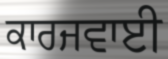
ਕਾਰਜਵਾਈ